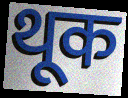
थूक